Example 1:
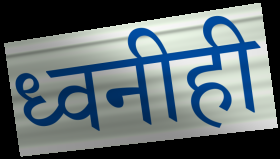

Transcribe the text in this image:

ध्वनीही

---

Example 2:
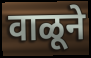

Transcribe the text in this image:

वाळूने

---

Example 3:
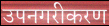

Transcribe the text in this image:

उपनगरीकरण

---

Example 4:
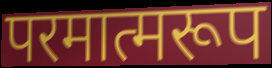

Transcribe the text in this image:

परमात्मरूप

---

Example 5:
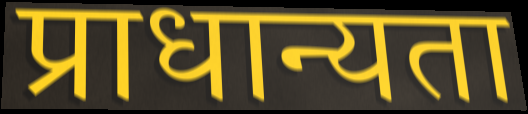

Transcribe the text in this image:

प्राधान्यता